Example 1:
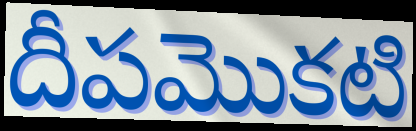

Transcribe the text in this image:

దీపమొకటి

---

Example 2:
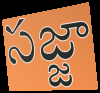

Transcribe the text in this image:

సజ్జా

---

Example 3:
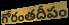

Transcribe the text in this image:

గోరంతదీపం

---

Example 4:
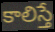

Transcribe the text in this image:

కాలిస్తే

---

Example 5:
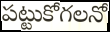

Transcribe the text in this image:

పట్టుకోగలనో